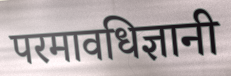
परमावधिज्ञानी